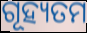
ଗୂହ୍ୟତମ